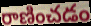
రాణించడం